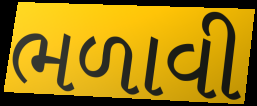
ભળાવી